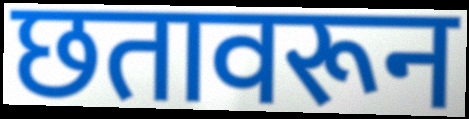
छतावरून